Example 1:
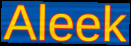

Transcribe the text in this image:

Aleek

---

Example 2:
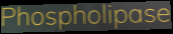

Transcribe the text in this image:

Phospholipase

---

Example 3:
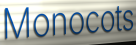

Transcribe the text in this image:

Monocots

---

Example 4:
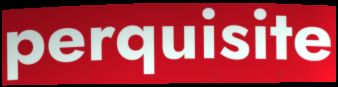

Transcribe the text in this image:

perquisite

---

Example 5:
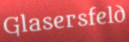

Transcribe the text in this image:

Glasersfeld